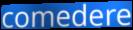
comedere